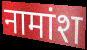
नामांश